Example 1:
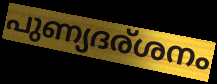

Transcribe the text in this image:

പുണ്യദര്ശനം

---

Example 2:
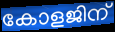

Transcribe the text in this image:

കോളജിന്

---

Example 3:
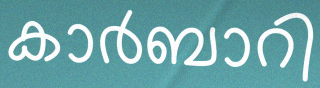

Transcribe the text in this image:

കാർബാറി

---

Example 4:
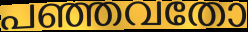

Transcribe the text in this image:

പഞ്ഞവതോ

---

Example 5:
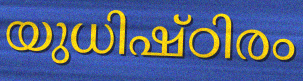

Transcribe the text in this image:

യുധിഷ്ഠിരം